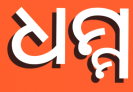
ଧମ୍ମ